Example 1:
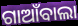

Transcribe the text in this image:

ଗାଆଁବାଲା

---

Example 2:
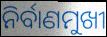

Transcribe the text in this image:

ନିର୍ବାଣମୁଖୀ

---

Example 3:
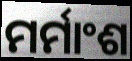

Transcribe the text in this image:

ମର୍ମାଂଶ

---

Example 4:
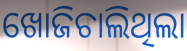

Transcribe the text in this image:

ଖୋଜିଚାଲିଥିଲା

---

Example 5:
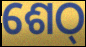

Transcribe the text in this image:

ଶେଠ୍